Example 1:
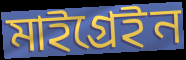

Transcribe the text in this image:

মাইগ্ৰেইন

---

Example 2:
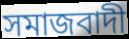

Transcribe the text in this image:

সমাজবাদী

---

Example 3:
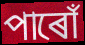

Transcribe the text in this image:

পাৰোঁ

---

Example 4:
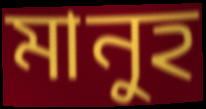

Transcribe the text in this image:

মানুহ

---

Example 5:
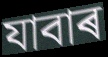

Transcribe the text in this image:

যাবাৰ